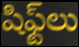
షిఫ్ట్‌లు